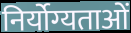
निर्योग्यताओं